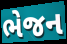
ભેજન